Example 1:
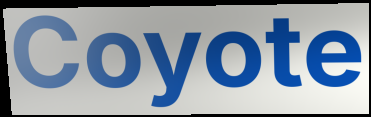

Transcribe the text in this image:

Coyote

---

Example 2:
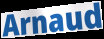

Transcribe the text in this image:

Arnaud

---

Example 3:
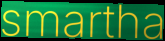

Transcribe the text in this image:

smartha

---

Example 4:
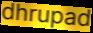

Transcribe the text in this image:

dhrupad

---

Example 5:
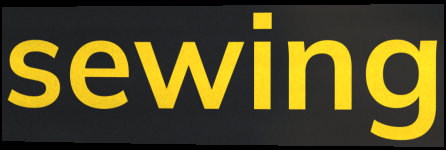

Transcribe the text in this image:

sewing